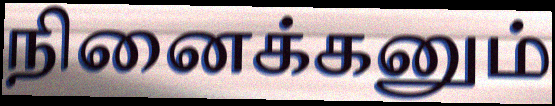
நினைக்கனும்